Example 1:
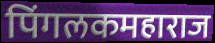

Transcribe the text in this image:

पिंगलकमहाराज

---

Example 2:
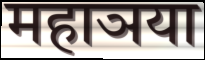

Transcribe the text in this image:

महाञया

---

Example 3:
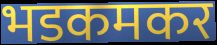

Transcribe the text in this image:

भडकमकर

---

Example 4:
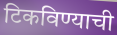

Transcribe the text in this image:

टिकविण्याची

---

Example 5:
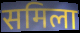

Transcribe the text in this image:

समिला